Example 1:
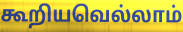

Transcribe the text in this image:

கூறியவெல்லாம்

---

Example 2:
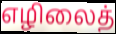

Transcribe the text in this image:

எழிலைத்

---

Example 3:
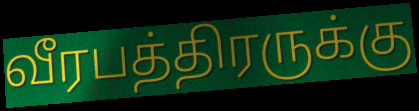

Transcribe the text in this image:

வீரபத்திரருக்கு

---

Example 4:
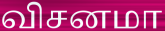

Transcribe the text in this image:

விசனமா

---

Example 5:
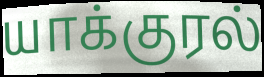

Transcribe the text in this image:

யாக்குரல்